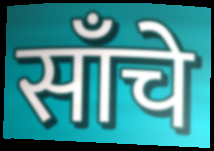
साँचे